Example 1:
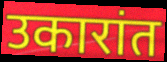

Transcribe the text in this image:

उकारांत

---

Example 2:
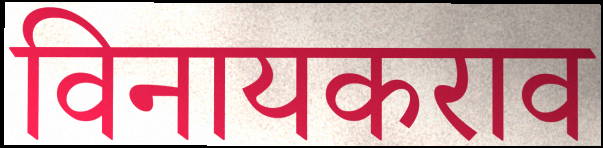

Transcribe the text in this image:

विनायकराव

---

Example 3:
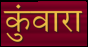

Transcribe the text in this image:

कुंवारा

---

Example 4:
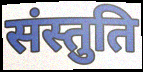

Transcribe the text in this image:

संस्तुति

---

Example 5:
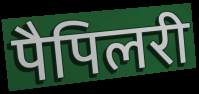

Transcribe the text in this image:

पैपिलरी